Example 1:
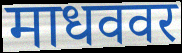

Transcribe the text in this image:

माधववर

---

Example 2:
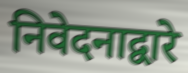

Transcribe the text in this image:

निवेदनाद्वारे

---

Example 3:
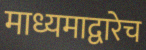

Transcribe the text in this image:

माध्यमाद्वारेच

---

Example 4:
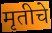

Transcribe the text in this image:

मृतीचे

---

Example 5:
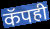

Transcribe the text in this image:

कॅपही